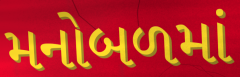
મનોબળમાં